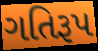
ગતિરૂપ